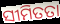
ସୀମିତତା